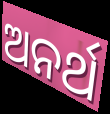
ଅନର୍ଥ